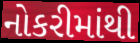
નોકરીમાંથી